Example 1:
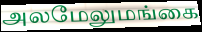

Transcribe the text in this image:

அலமேலுமங்கை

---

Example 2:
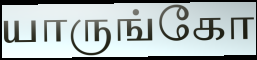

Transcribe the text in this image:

யாருங்கோ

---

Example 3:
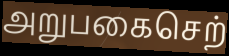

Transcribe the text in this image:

அறுபகைசெற்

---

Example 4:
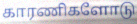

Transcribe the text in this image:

காரணிகளோடு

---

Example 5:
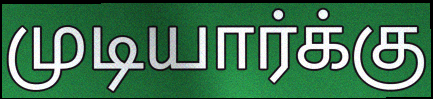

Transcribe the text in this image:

முடியார்க்கு